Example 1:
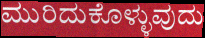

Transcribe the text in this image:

ಮುರಿದುಕೊಳ್ಳುವುದು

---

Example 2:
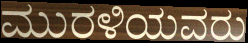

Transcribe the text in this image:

ಮುರಳಿಯವರು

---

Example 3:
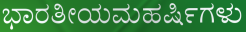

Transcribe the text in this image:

ಭಾರತೀಯಮಹರ್ಷಿಗಳು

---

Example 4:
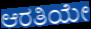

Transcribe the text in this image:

ಆರತಿಯೇ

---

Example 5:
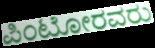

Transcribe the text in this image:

ಪಿಂಟೋರವರು